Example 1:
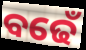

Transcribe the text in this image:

ବଢେଁ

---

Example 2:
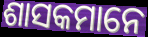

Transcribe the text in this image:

ଶାସକମାନେ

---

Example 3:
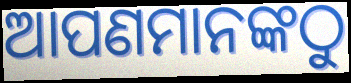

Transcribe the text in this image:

ଆପଣମାନଙ୍କଠୁ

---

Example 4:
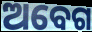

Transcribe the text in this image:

ଅବେଗ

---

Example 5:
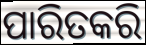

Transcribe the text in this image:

ପାରିତକରି